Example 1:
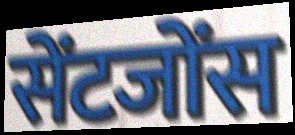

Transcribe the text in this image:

सेंटजोंस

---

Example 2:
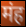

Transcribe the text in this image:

मंह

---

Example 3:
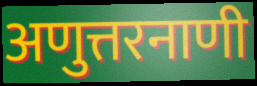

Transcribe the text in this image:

अणुत्तरनाणी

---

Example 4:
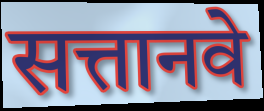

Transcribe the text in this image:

सत्तानवे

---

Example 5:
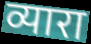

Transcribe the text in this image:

व्यारा